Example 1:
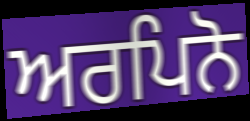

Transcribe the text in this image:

ਅਰਪਿਨੋ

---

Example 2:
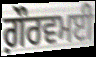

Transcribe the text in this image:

ਗ਼ੌਰਵਮਈ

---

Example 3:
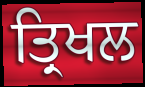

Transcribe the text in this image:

ਤ੍ਰਿਖਲ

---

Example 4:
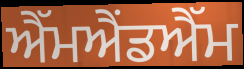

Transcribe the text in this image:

ਐੱਮਐਂਡਐੱਮ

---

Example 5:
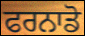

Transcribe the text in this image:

ਫਰਨਾਡੋ